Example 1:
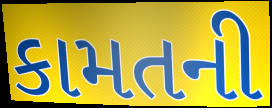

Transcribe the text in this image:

કામતની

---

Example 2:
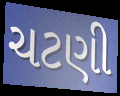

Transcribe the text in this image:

ચટણી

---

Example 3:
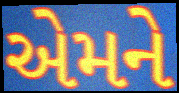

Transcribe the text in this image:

એમને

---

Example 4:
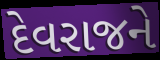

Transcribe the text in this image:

દેવરાજને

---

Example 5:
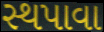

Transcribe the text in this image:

સ્થપાવા